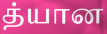
த்யான